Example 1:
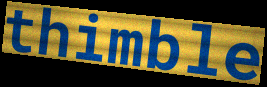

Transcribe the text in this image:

thimble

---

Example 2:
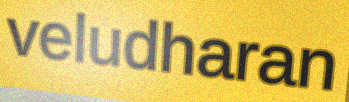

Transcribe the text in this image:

veludharan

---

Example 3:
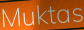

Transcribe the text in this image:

Muktas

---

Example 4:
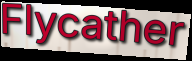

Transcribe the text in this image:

Flycather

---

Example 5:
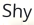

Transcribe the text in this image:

Shy